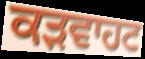
ਕੜਵਾਹਟ